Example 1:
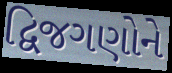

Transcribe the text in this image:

દ્વિજગણોને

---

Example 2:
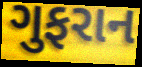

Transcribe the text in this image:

ગુફરાન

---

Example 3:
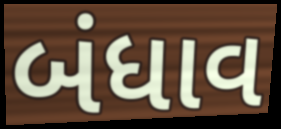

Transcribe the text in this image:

બંધાવ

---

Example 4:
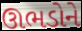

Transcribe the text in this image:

ઊભડોને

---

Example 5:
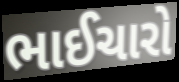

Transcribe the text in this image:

ભાઈચારો